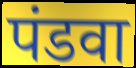
पंडवा